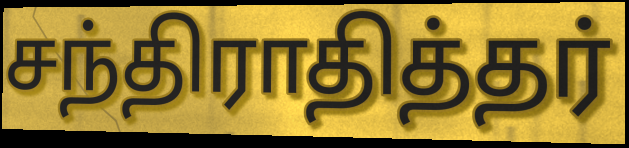
சந்திராதித்தர்